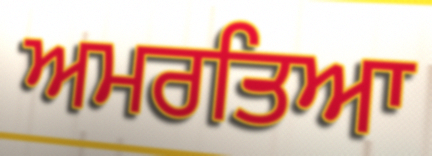
ਅਮਰਤਿਆ